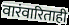
वारंवारिताही